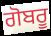
ਗੋਬਰੂ